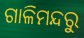
ଗାଳିମନ୍ଦରୁ